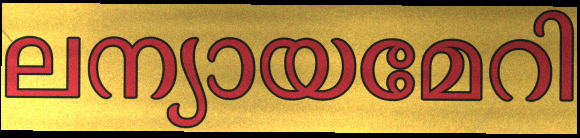
ലന്യായമേറി